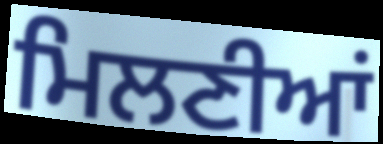
ਮਿਲਣੀਆਂ